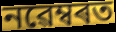
নৱেম্বৰত